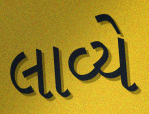
લાવ્યે